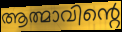
ആത്മാവിന്റെ